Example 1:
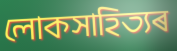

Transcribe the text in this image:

লোকসাহিত্যৰ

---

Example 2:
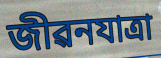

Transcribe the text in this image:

জীৱনযাত্ৰা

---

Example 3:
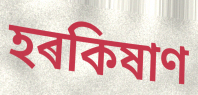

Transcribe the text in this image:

হৰকিষাণ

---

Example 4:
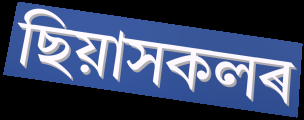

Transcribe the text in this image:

ছিয়াসকলৰ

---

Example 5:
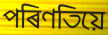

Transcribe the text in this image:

পৰিণতিয়ে